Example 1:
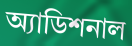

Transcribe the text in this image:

অ্যাডিশনাল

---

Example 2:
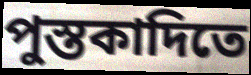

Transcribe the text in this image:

পুস্তকাদিতে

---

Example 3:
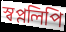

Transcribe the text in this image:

স্বপ্নলিপি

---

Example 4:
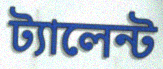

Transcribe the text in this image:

ট্যালেন্ট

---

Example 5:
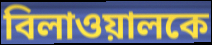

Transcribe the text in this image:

বিলাওয়ালকে